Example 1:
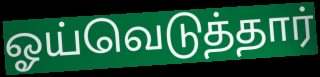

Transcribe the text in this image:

ஓய்வெடுத்தார்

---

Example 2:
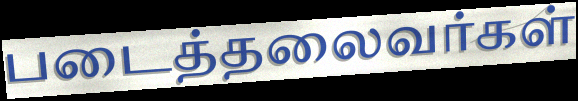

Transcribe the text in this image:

படைத்தலைவர்கள்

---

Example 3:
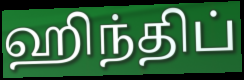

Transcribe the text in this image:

ஹிந்திப்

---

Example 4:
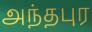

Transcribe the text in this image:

அந்தபுர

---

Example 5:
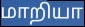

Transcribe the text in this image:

மாறியா